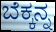
ಬೆಕ್ಕನ್ನ